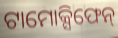
ଟାମୋକ୍ସିଫେନ୍